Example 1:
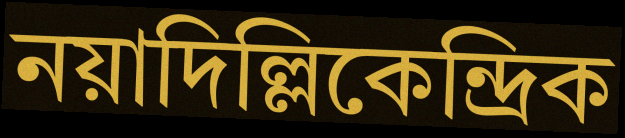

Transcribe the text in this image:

নয়াদিল্লিকেন্দ্রিক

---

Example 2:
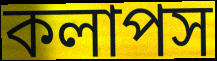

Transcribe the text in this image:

কলাপস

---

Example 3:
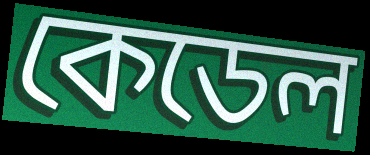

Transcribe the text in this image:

কেডেল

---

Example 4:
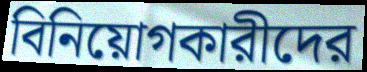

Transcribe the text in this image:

বিনিয়োগকারীদের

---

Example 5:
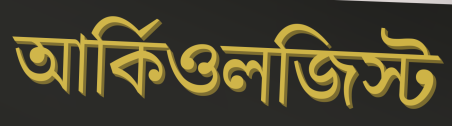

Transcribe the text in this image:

আর্কিওলজিস্ট